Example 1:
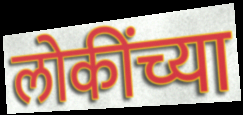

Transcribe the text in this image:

लोकींच्या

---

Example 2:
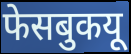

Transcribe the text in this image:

फेसबुकयू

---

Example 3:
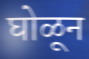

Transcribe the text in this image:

घोळून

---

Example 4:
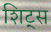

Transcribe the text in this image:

शिट्स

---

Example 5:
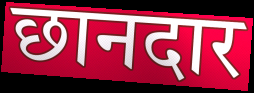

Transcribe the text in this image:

छानदार